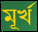
মূৰ্খ